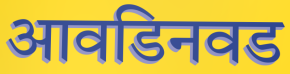
आवडिनवड